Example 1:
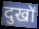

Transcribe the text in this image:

दुखों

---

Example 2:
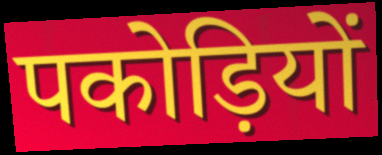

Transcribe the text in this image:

पकोड़ियों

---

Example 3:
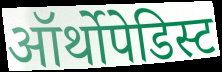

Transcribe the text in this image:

ऑर्थोपेडिस्ट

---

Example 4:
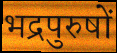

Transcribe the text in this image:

भद्रपुरुषों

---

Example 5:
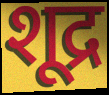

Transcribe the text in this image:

शूद्र